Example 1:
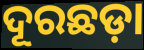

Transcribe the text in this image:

ଦୂରଛଡ଼ା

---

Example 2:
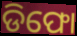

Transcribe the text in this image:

ଡିଫୋ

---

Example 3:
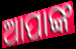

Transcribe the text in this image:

ଆପାଙ୍କ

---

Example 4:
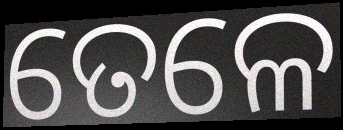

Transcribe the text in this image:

ତେଳେ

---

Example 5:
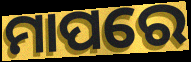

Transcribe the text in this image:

ମାପରେ